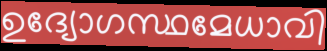
ഉദ്യോഗസ്ഥമേധാവി